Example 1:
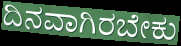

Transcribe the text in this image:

ದಿನವಾಗಿರಬೇಕು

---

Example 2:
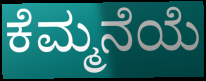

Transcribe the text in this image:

ಕೆಮ್ಮನೆಯೆ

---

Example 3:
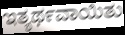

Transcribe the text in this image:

ಇತ್ಯರ್ಥವಾಯಿತು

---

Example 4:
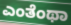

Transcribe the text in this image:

ಎಂತೆಂಥಾ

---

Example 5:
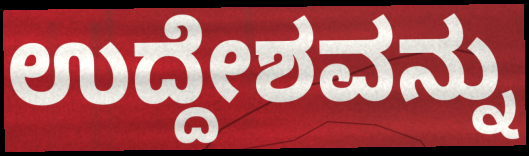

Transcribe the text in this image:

ಉದ್ದೇಶವನ್ನು